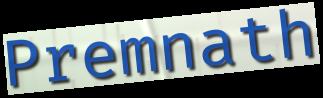
Premnath